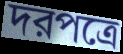
দরপত্রে